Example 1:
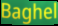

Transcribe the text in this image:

Baghel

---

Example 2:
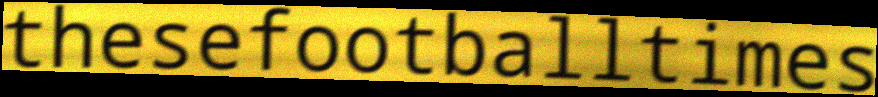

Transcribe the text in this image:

thesefootballtimes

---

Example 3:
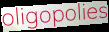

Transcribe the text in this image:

oligopolies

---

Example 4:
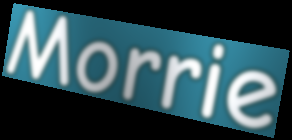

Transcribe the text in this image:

Morrie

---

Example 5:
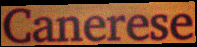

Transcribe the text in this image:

Canerese